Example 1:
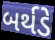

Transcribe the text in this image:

બર્થડે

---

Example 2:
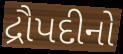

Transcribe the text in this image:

દ્રૌપદીનો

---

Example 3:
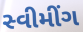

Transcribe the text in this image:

સ્વીમીંગ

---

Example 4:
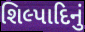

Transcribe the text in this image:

શિલ્પાદિનું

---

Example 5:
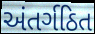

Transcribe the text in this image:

અંતર્ગઠિત